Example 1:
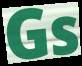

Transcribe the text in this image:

Gs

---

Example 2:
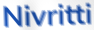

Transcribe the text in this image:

Nivritti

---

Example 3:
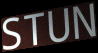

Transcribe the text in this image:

STUN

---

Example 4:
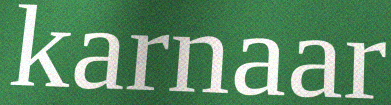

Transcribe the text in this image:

karnaar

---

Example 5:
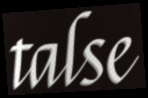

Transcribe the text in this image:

talse